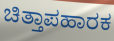
ಚಿತ್ತಾಪಹಾರಕ